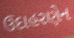
ઉદાહરણેન